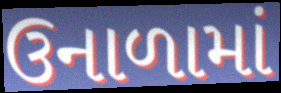
ઉનાળામાં